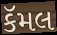
કૅમલ